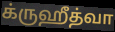
க்ருஹீத்வா